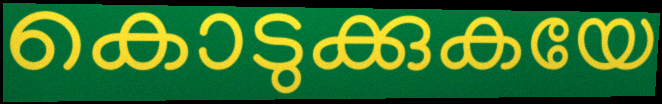
കൊടുക്കുകയേ